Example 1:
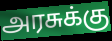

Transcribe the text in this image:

அரசுக்கு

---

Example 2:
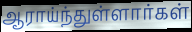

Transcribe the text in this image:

ஆராய்ந்துள்ளார்கள்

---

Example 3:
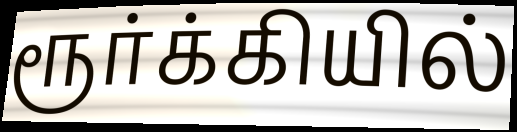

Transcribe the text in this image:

ரூர்க்கியில்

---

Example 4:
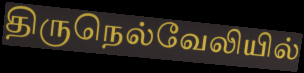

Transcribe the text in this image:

திருநெல்வேலியில்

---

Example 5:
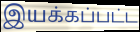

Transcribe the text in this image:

இயக்கப்பட்ட